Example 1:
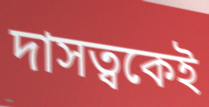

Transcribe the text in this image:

দাসত্বকেই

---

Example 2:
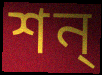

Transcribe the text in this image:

শন্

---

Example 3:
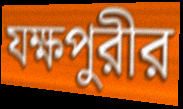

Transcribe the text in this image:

যক্ষপুরীর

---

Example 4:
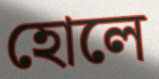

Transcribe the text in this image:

হোলে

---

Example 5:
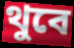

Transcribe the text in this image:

থুবে